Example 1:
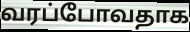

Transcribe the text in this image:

வரப்போவதாக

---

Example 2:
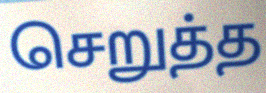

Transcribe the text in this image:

செறுத்த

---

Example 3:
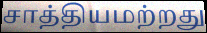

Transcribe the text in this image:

சாத்தியமற்றது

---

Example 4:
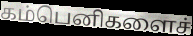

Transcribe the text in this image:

கம்பெனிகளைச்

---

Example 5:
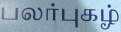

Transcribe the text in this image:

பலர்புகழ்